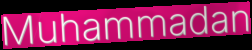
Muhammadan